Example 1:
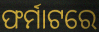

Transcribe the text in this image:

ଫର୍ମାଟରେ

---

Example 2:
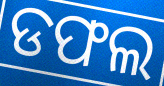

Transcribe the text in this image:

ଡଫଲ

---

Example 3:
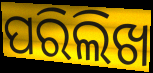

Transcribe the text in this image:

ପରିଲିଖ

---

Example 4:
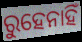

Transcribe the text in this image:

ରୁହେନାହିଁ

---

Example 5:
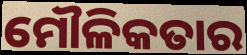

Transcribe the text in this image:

ମୌଳିକତାର